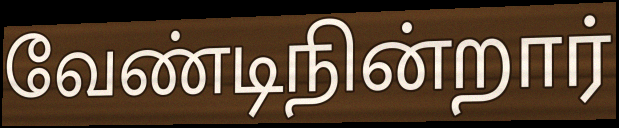
வேண்டிநின்றார்